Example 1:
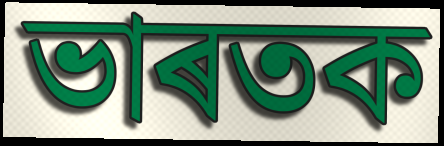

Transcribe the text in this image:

ভাৰতক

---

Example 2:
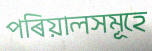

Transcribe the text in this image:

পৰিয়ালসমূহে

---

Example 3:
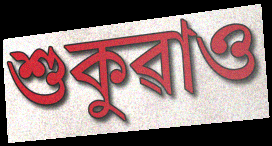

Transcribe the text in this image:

শুকুৱাও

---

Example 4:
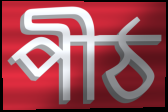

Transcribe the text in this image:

পীঠ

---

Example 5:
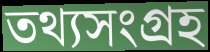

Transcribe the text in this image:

তথ্যসংগ্ৰহ